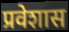
प्रवेशास